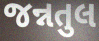
જન્નતુલ